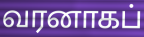
வரனாகப்